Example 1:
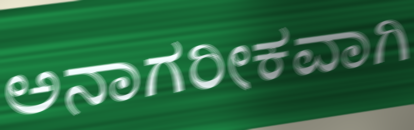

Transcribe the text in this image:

ಅನಾಗರೀಕವಾಗಿ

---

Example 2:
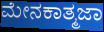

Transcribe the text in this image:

ಮೇನಕಾತ್ಮಜಾ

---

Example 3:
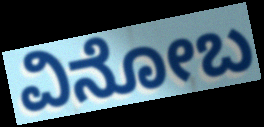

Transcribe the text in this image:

ವಿನೋಬ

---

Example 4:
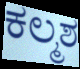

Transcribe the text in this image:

ಕಲ್ಮಶ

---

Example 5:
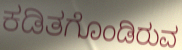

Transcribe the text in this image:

ಕಡಿತಗೊಂಡಿರುವ